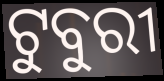
ଟୁବୁରୀ